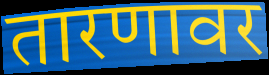
तारणावर